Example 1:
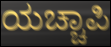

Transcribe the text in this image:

ಯಚ್ಚಾಪಿ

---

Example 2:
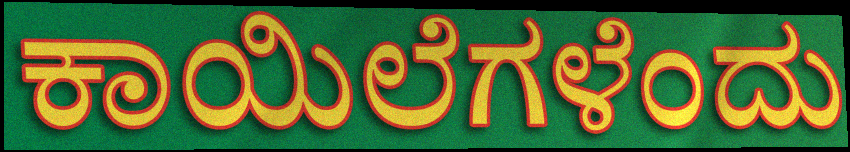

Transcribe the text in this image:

ಕಾಯಿಲೆಗಳೆಂದು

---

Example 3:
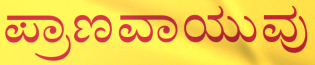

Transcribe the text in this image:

ಪ್ರಾಣವಾಯುವು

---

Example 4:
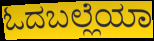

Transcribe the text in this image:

ಓದಬಲ್ಲೆಯಾ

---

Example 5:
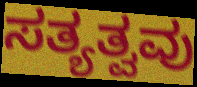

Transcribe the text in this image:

ಸತ್ಯತ್ವವು